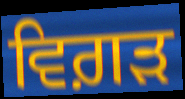
ਵਿਗ਼ੜ